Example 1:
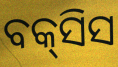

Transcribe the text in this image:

ବକ୍‍ସିସ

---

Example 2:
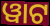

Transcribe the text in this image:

ୱାଟ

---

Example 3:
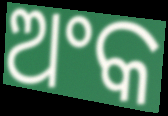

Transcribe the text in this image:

ଅଂକ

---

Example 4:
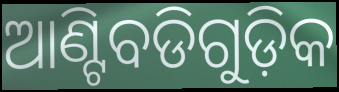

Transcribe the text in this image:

ଆଣ୍ଟିବଡିଗୁଡ଼ିକ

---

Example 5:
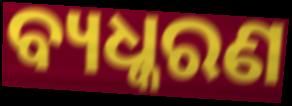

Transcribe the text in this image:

ବ୍ୟଧ୍କରଣ